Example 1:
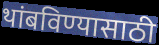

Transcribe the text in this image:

थांबविण्यासाठी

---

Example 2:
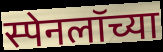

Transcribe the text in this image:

स्पेनलॉच्या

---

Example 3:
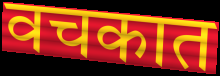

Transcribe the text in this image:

वचकात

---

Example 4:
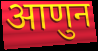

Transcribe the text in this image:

आणुन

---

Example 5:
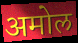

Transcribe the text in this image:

अमोल